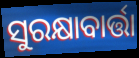
ସୁରକ୍ଷାବାର୍ତ୍ତା